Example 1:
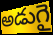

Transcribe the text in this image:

అడుగై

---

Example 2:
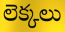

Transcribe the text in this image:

లెక్కలు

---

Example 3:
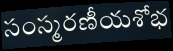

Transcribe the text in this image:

సంస్మరణీయశోభ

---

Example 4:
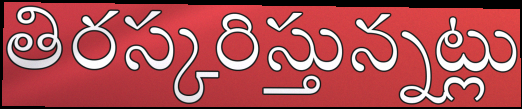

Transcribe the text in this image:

తిరస్కరిస్తున్నట్లు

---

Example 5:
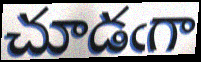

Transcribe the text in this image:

చూడఁగా